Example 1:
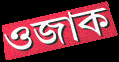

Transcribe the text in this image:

ওজাক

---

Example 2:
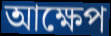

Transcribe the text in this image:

আক্ষেপ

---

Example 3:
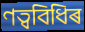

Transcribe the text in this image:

ণত্ববিধিৰ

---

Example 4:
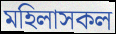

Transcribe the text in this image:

মহিলাসকল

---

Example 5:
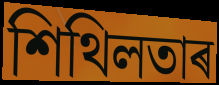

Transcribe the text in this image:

শিথিলতাৰ